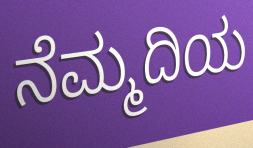
ನೆಮ್ಮದಿಯ